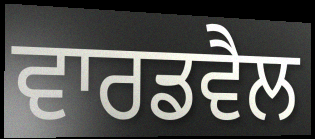
ਵਾਰਡਵੈਲ